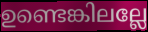
ഉണ്ടെങ്കിലല്ലേ